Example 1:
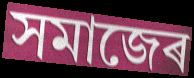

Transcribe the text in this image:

সমাজেৰ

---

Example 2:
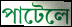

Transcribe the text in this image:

পাটেলে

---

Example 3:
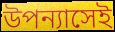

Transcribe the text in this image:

উপন্যাসেই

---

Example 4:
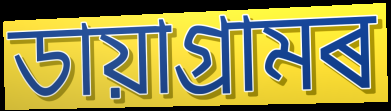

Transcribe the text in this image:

ডায়াগ্ৰামৰ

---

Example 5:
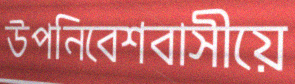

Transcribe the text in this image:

উপনিবেশবাসীয়ে